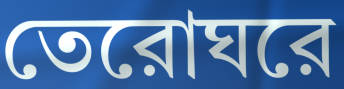
তেরোঘরে